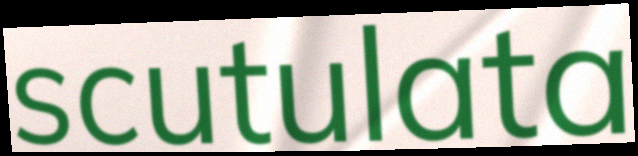
scutulata